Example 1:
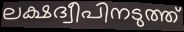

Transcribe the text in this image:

ലക്ഷദ്വീപിനടുത്ത്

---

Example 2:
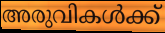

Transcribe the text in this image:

അരുവികൾക്ക്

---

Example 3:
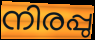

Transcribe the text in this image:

നിരപ്പു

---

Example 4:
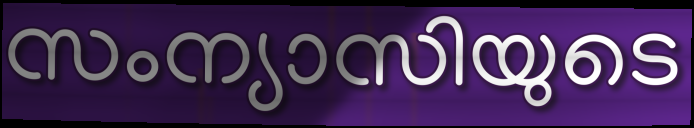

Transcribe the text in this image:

സംന്യാസിയുടെ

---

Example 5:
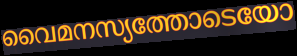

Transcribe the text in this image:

വൈമനസ്യത്തോടെയോ